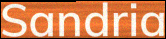
Sandria